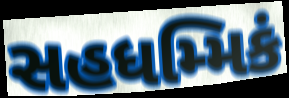
સહધમ્મિકં